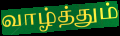
வாழ்த்தும்